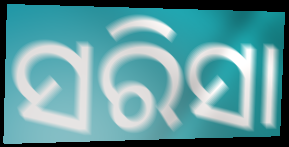
ସରିସା